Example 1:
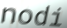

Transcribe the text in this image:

nodi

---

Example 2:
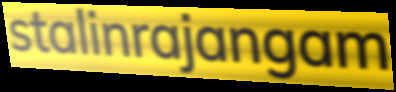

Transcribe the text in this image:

stalinrajangam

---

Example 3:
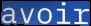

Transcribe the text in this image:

avoir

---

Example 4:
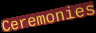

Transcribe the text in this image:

Ceremonies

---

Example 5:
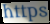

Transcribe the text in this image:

https